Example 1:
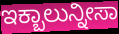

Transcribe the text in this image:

ಇಕ್ಬಾಲುನ್ನೀಸಾ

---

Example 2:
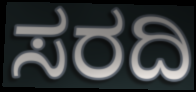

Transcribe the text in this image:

ಸರದಿ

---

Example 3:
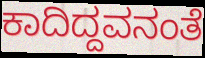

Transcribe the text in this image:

ಕಾದಿದ್ದವನಂತೆ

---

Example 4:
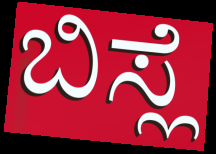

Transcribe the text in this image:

ಬಿಸ್ಲೆ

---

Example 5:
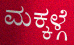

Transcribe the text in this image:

ಮಕ್ಕಳ್ಗೆ